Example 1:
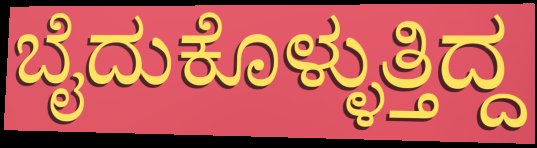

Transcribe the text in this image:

ಬೈದುಕೊಳ್ಳುತ್ತಿದ್ದ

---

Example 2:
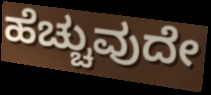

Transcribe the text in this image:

ಹೆಚ್ಚುವುದೇ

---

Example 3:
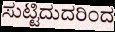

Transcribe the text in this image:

ಸುಟ್ಟಿದುದರಿಂದ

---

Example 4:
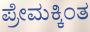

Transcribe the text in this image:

ಪ್ರೇಮಕ್ಕಿಂತ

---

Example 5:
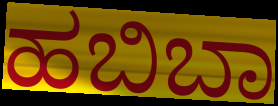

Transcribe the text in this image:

ಹಬಿಬಾ